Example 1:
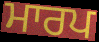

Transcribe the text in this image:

ਮਾਰਪ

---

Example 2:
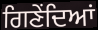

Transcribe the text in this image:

ਗਿਣੇਂਦਿਆਂ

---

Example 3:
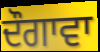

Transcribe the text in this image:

ਦੌਗਾਵਾ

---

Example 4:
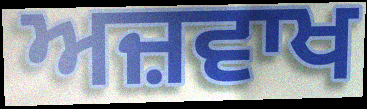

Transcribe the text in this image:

ਅਜ਼ਵਾਖ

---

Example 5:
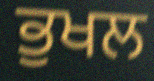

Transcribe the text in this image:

ਭੁਖਲ